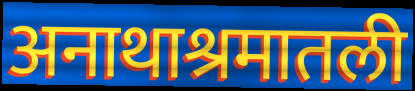
अनाथाश्रमातली